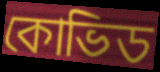
কোভিড